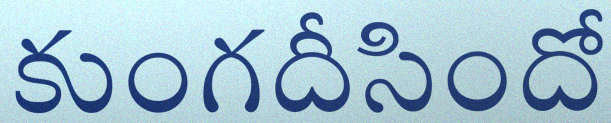
కుంగదీసిందో